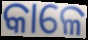
କାଳେ